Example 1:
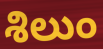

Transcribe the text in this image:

శిలుం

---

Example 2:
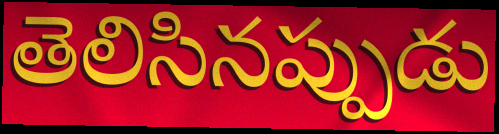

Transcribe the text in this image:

తెలిసినప్పుడు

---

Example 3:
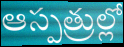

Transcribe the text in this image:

ఆస్పత్రుల్లో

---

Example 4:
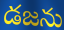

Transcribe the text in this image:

డజను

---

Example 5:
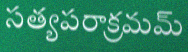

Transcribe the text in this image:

సత్యపరాక్రమమ్